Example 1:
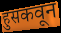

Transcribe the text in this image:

हुसकवून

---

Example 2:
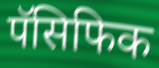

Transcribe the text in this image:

पॅसिफिक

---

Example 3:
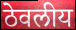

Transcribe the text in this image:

ठेवलीय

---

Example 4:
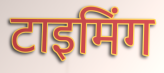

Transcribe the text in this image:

टाइमिंग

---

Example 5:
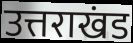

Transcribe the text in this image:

उत्तराखंड